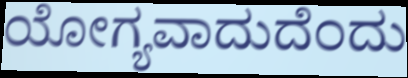
ಯೋಗ್ಯವಾದುದೆಂದು